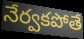
నేర్వకపోతే